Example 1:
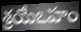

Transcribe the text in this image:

శ్రయేఽహం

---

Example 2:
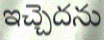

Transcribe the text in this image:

ఇచ్చెదను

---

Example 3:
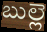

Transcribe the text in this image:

బుల్లె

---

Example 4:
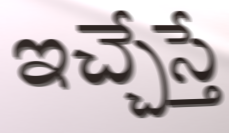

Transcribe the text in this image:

ఇచ్చేస్తే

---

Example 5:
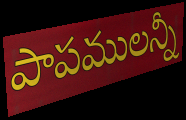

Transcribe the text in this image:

పాపములన్నీ